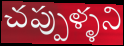
చప్పుళ్ళని